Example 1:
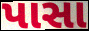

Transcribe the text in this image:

પાસા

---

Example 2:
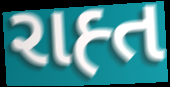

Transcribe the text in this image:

રાહ્ત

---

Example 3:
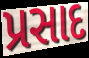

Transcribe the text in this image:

પ્રસાદ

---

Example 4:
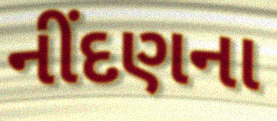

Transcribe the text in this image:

નીંદણના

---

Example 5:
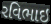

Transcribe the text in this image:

રવિભાઇ